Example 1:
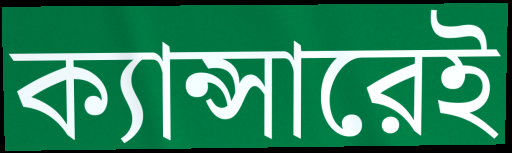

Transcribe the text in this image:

ক্যান্সারেই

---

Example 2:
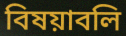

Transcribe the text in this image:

বিষয়াবলি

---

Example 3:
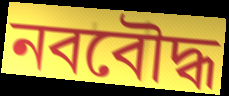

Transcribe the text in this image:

নববৌদ্ধ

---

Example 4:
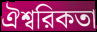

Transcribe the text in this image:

ঐশ্বরিকতা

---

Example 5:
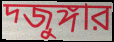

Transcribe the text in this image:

দ্জুঙ্গার